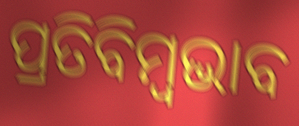
ପ୍ରତିବିମ୍ବଭାବ